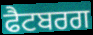
ਫੈਟਬਰਗ